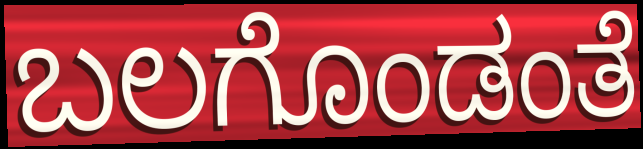
ಬಲಗೊಂಡಂತೆ